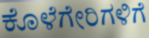
ಕೊಳೆಗೇರಿಗಳಿಗೆ